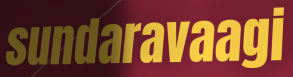
sundaravaagi